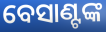
ବେସାଣ୍ଟଙ୍କ